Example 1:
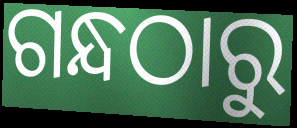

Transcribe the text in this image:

ଗନ୍ଧଠାରୁ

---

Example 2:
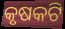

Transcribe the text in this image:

କୃଷକଟି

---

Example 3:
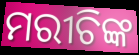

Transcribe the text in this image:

ମରୀଚିଙ୍କ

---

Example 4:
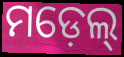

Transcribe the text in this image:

ମଡ଼େଲ୍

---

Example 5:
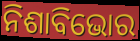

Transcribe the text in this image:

ନିଶାବିଭୋର